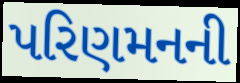
પરિણમનની